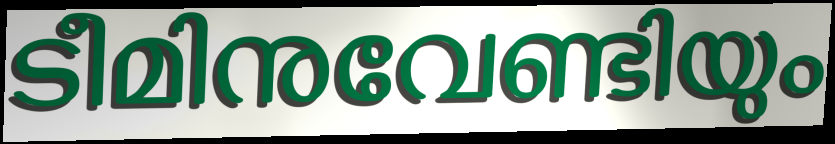
ടീമിനുവേണ്ടിയും